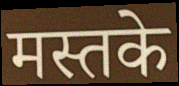
मस्तके